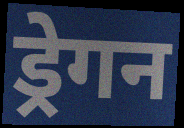
ड्रेगन